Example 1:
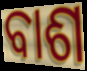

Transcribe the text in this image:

ବାଶ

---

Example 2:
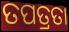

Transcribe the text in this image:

ତପତ୍ରତା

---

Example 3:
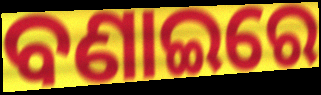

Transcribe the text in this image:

ବଣାଇରେ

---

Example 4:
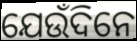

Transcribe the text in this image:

ଯେଉଁଦିନେ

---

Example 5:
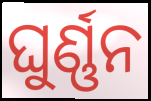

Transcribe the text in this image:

ଘୁର୍ଣ୍ଣନ